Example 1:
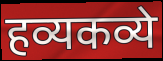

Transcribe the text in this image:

हव्यकव्ये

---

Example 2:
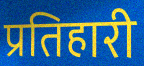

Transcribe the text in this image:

प्रतिहारी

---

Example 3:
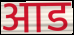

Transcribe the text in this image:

आड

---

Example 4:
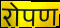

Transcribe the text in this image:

रोपण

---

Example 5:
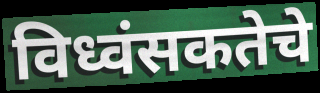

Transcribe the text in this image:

विध्वंसकतेचे